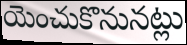
యెంచుకొనునట్లు